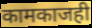
कामकाजही